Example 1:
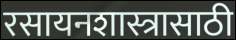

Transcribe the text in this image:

रसायनशास्त्रासाठी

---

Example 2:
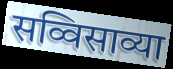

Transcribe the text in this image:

सव्विसाव्या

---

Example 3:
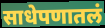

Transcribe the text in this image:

साधेपणातलं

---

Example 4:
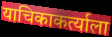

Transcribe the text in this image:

याचिकाकर्त्याला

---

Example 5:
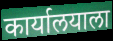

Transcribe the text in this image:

कार्यालयाला